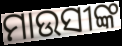
ମାଉସୀଙ୍କ